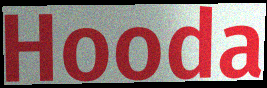
Hooda